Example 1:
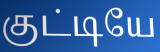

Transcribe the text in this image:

குட்டியே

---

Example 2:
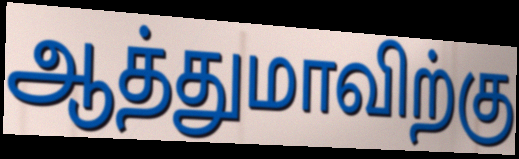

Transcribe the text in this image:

ஆத்துமாவிற்கு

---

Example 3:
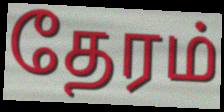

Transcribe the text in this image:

தேரம்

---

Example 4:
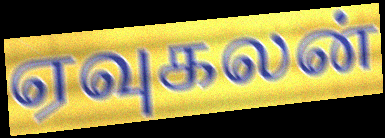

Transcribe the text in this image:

ஏவுகலன்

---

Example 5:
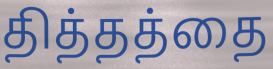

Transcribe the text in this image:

தித்தத்தை